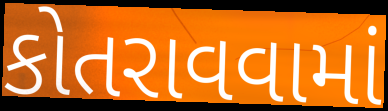
કોતરાવવામાં